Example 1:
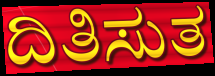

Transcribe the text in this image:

ದಿತಿಸುತ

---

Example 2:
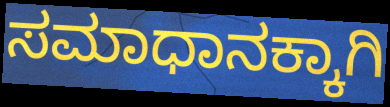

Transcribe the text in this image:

ಸಮಾಧಾನಕ್ಕಾಗಿ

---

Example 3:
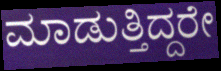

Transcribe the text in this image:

ಮಾಡುತ್ತಿದ್ದರೇ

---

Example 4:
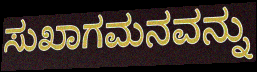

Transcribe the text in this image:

ಸುಖಾಗಮನವನ್ನು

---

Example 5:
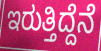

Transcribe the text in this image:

ಇರುತ್ತಿದ್ದೆನೆ